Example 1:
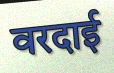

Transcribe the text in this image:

वरदाई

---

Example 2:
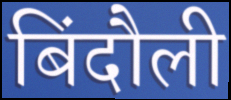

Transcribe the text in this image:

बिंदौली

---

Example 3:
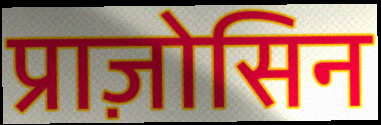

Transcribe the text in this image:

प्राज़ोसिन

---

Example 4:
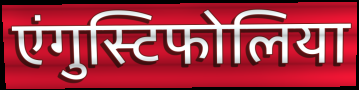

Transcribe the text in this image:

एंगुस्टिफोलिया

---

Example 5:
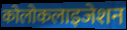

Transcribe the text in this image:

कोलोकलाइजेशन